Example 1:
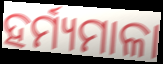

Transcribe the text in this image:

ହର୍ମ୍ୟମାଳା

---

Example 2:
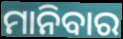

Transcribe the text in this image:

ମାନିବାର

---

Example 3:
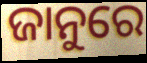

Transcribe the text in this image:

ଜାନୁରେ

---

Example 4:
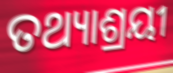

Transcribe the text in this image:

ତଥ୍ୟାଶ୍ରୟୀ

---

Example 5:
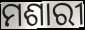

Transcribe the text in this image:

ମଶାରୀ